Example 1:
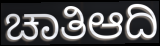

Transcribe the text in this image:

ಚಾತಿಆದಿ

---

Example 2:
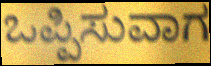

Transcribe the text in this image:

ಒಪ್ಪಿಸುವಾಗ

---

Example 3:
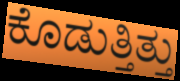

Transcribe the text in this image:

ಕೊಡುತ್ತಿತ್ತು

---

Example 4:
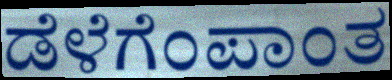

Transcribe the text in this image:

ಡೆಳೆಗೆಂಪಾಂತ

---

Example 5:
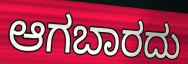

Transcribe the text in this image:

ಆಗಬಾರದು